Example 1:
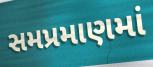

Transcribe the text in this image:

સમપ્રમાણમાં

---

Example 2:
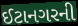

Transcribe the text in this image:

ઈટાનગરની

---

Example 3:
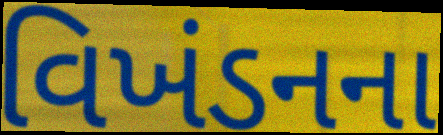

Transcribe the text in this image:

વિખંડનના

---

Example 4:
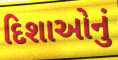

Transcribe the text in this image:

દિશાઓનું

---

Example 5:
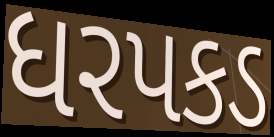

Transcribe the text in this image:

ધરપકડ